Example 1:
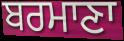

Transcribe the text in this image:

ਬਰਮਾਣਾ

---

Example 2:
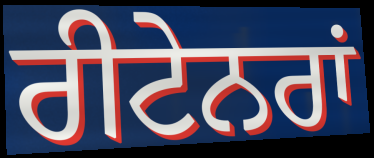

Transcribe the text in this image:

ਰੀਟੇਨਰਾਂ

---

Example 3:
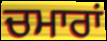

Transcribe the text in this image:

ਚਮਾਰਾਂ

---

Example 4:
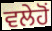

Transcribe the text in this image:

ਵਲੇਹੋਂ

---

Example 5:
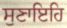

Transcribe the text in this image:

ਸੁਣਾਇਹਿ